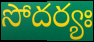
సోదర్యః